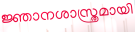
ജ്ഞാനശാസ്ത്രമായി